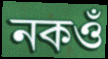
নকওঁ